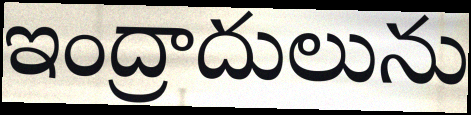
ఇంద్రాదులును